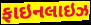
ફાઇનલાઇઝ